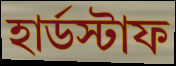
হার্ডস্টাফ